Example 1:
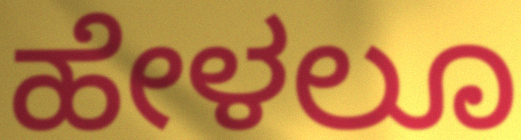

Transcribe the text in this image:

ಹೇಳಲೂ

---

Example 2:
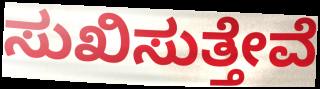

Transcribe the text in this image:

ಸುಖಿಸುತ್ತೇವೆ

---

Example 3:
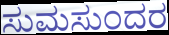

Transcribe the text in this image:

ಸುಮಸುಂದರ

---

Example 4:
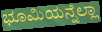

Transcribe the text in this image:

ಭೂಮಿಯನ್ನೆಲ್ಲಾ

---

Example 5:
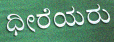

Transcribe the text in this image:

ಧೀರೆಯರು